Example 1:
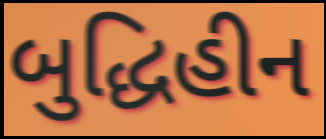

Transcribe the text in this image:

બુદ્ધિહીન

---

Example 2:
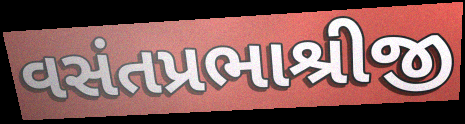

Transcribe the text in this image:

વસંતપ્રભાશ્રીજી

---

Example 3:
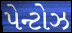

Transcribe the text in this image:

પેન્ટોઝ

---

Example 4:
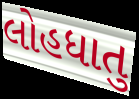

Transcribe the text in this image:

લોહધાતુ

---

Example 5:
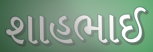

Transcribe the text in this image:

શાહભાઈ